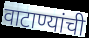
वाटाण्यांची